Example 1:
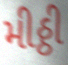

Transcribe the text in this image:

મીઠ્ઠી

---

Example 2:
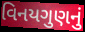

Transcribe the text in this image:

વિનયગુણનું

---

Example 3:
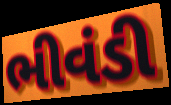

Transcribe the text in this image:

ભીવંડી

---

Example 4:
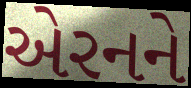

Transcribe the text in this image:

એરનને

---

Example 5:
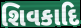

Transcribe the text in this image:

શિવકાદિ